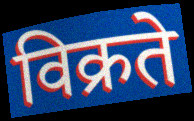
विक्रते